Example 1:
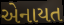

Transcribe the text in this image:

એનાયત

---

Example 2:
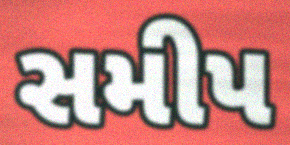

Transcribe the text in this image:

સમીપ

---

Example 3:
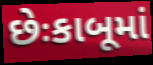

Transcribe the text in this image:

છેઃકાબૂમાં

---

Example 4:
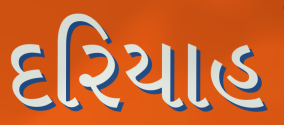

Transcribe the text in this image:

દરિયાહ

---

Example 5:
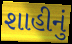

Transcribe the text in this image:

શાહીનું